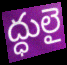
ద్ధులై